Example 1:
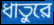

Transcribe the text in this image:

ধাতুৱে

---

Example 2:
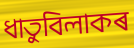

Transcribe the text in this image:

ধাতুবিলাকৰ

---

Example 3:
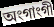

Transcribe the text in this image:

অংগাংগী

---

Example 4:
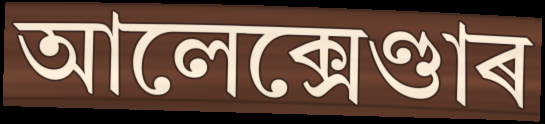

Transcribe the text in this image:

আলেক্সেণ্ডাৰ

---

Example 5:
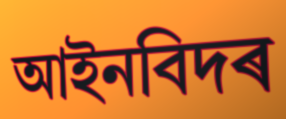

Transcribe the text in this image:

আইনবিদৰ